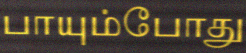
பாயும்போது